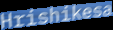
Hrishikesa